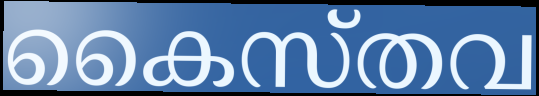
കൈസ്തവ